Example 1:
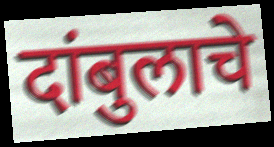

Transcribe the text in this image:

दांबुलाचे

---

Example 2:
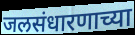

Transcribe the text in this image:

जलसंधारणाच्या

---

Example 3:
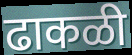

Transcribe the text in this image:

ढाकळी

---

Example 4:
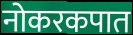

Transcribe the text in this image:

नोकरकपात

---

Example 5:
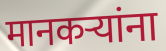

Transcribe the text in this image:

मानकऱ्यांना